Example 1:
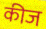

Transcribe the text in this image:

कीज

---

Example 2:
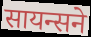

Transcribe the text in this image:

सायन्सने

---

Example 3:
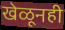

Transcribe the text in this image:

खेळूनही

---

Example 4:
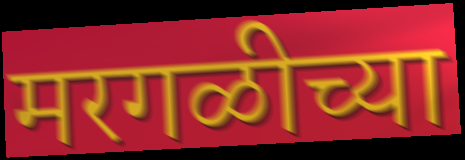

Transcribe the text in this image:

मरगळीच्या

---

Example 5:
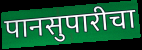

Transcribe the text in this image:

पानसुपारीचा